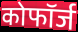
कोफॉर्ज